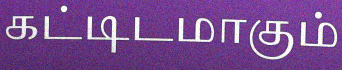
கட்டிடமாகும்